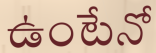
ఉంటేనో